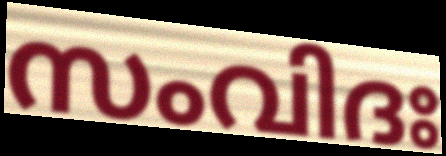
സംവിദഃ